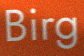
Birg